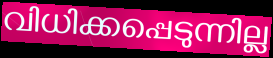
വിധിക്കപ്പെടുന്നില്ല